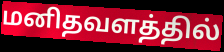
மனிதவளத்தில்